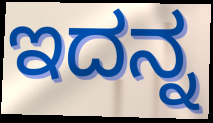
ಇದನ್ನ